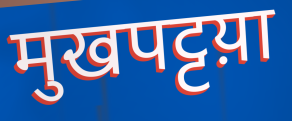
मुखपट्टय़ा